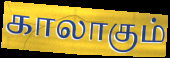
காலாகும்